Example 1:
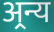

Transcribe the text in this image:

अ्रन्य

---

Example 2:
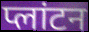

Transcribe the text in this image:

प्लांटन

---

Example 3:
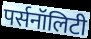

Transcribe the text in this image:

पर्सनॉलिटी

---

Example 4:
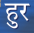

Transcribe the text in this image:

हुर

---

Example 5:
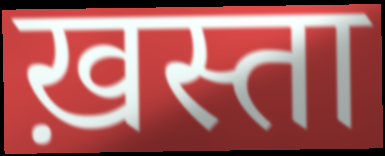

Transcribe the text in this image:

ख़स्ता